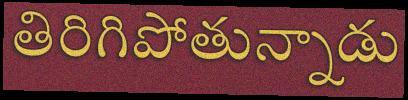
తిరిగిపోతున్నాడు